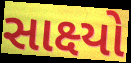
સાક્ષ્યો